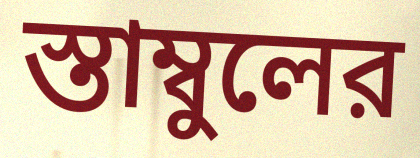
স্তাম্বুলের